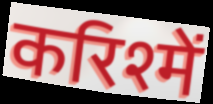
करिश्में